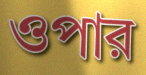
ওপার